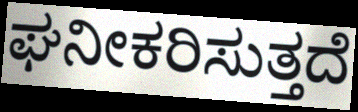
ಘನೀಕರಿಸುತ್ತದೆ